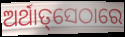
ଅର୍ଥାତ୍‌ସେଠାରେ